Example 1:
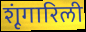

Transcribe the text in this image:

श्रृंगारिली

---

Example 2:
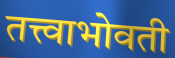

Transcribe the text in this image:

तत्त्वाभोवती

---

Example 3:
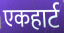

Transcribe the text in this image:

एकहार्ट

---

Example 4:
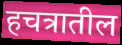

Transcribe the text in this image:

हचत्रातील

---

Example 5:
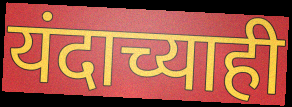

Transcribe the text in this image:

यंदाच्याही